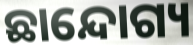
ଛାନ୍ଦୋଗ୍ୟ